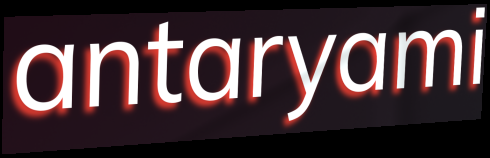
antaryami